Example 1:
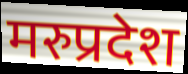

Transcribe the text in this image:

मरुप्रदेश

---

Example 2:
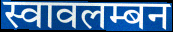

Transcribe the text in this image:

स्वावलम्बन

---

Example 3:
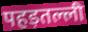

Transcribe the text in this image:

पहड़तल्ली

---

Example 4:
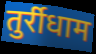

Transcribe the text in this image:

तुर्रीधाम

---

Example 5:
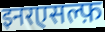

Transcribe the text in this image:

इनरएसल्फ़